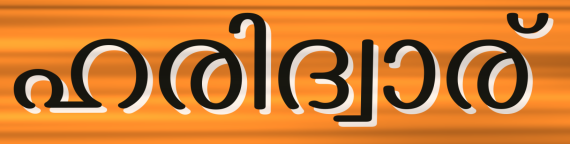
ഹരിദ്വാര്